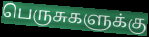
பெருசுகளுக்கு